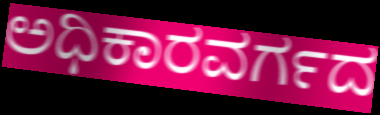
ಅಧಿಕಾರವರ್ಗದ